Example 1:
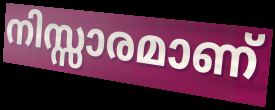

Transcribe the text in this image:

നിസ്സാരമാണ്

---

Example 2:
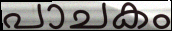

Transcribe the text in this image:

പാചകം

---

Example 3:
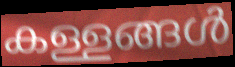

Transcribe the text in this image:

കള്ളങ്ങൾ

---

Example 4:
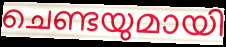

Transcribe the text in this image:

ചെണ്ടയുമായി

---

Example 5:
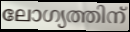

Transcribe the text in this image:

ലോഗ്യത്തിന്